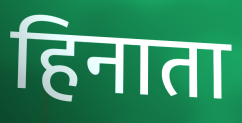
हिनाता